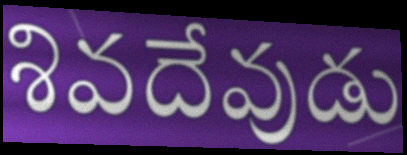
శివదేవుడు